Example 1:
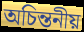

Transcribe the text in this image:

অচিন্তনীয়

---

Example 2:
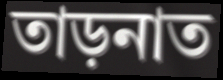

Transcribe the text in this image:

তাড়নাত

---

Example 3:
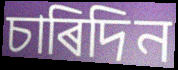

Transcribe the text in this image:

চাৰিদিন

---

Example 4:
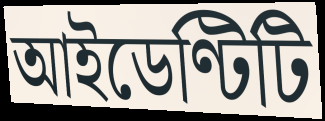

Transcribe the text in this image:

আইডেণ্টিটি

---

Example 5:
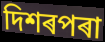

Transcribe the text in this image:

দিশৰপৰা